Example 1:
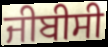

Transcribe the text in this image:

ਜੀਬੀਸੀ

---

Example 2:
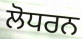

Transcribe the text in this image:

ਲੋਧਰਨ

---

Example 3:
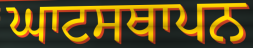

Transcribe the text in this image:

ਘਾਟਸਥਾਪਨ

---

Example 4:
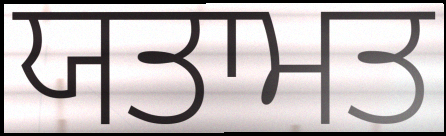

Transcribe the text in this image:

ਯਤਾਮਤ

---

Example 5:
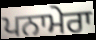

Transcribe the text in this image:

ਪਨਾਮੇਰਾ